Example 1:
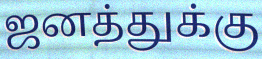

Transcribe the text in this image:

ஜனத்துக்கு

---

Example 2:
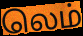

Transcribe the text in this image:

லெம்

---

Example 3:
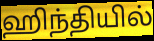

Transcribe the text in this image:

ஹிந்தியில்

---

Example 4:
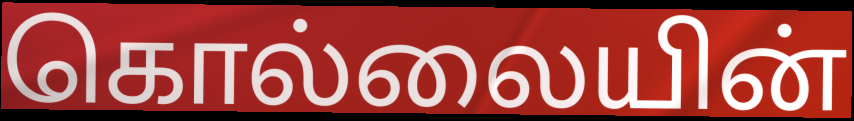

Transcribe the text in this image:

கொல்லையின்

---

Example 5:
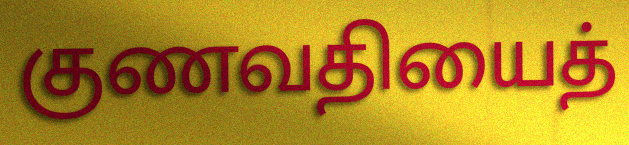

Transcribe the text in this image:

குணவதியைத்